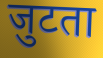
जुटता